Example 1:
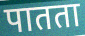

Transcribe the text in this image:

पातता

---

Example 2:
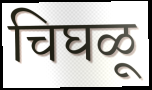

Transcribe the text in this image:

चिघळू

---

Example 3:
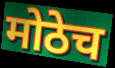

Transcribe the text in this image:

मोठेच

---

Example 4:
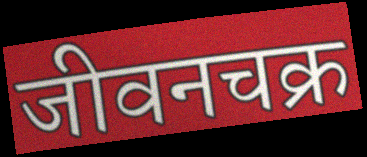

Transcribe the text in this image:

जीवनचक्र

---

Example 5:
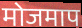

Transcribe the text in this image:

मोजमाप